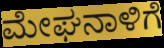
ಮೇಘನಾಳಿಗೆ